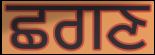
ਛਗਣ